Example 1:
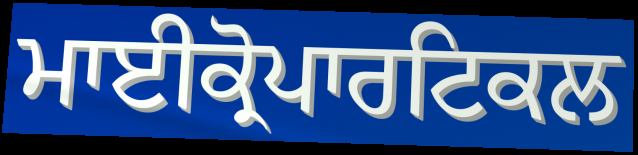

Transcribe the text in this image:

ਮਾਈਕ੍ਰੋਪਾਰਟਿਕਲ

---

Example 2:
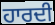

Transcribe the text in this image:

ਹਾਰਦੀ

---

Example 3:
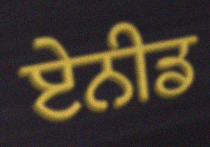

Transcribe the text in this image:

ਏਨੀਡ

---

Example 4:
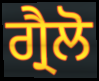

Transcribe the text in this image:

ਗ੍ਰੈਲੋ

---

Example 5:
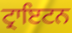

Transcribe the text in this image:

ਟ੍ਰਾਇਟਨ